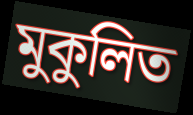
মুকুলিত